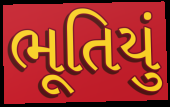
ભૂતિયું